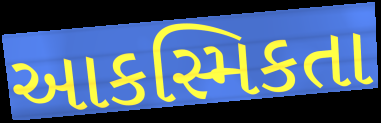
આકસ્મિકતા